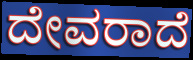
ದೇವರಾದೆ